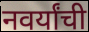
नवर्यांची